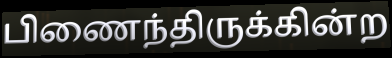
பிணைந்திருக்கின்ற